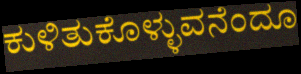
ಕುಳಿತುಕೊಳ್ಳುವನೆಂದೂ